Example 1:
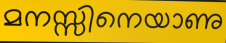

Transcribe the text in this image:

മനസ്സിനെയാണു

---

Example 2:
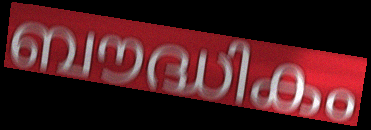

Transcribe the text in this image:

ബൗദ്ധികം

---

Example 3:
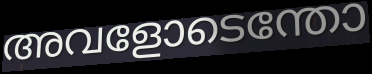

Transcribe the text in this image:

അവളോടെന്തോ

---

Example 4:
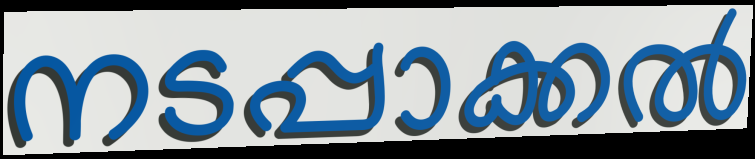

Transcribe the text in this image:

നടപ്പാക്കൽ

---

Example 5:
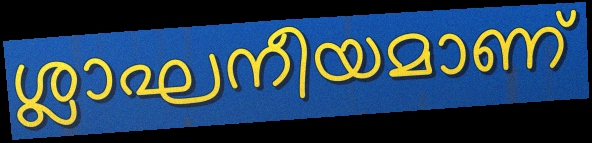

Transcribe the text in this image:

ശ്ലാഘനീയമാണ്